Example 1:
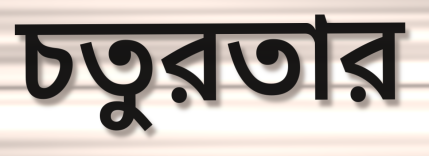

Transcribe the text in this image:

চতুরতার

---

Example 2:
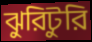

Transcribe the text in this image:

ঝুরিটুরি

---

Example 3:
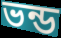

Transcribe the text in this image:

ভন্ড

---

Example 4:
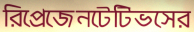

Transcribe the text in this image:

রিপ্রেজেনটেটিভসের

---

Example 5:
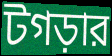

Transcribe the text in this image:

টগড়ার